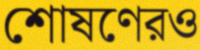
শোষণেরও